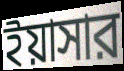
ইয়াসার